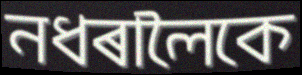
নধৰালৈকে